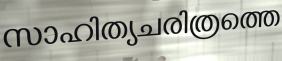
സാഹിത്യചരിത്രത്തെ